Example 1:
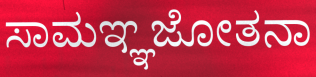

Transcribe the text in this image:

ಸಾಮಞ್ಞಜೋತನಾ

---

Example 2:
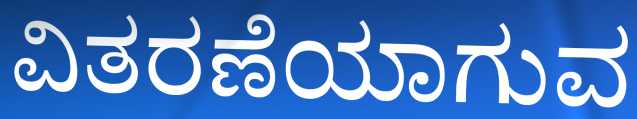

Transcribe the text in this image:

ವಿತರಣೆಯಾಗುವ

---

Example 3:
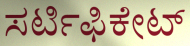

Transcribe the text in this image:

ಸರ್ಟಿಫಿಕೇಟ್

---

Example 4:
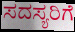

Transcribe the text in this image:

ಸದಸ್ಯರಿಗೆ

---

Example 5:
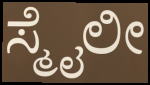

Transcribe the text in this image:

ಸ್ಮೈಲೀ